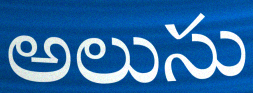
అలుసు